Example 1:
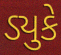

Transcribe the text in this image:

ડ્યુકે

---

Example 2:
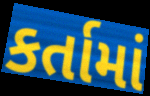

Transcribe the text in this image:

કર્તામાં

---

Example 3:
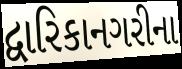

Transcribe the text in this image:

દ્વારિકાનગરીના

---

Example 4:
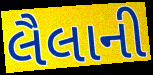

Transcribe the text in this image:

લૈલાની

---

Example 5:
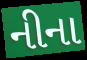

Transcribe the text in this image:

નીના